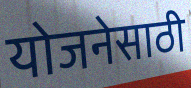
योजनेसाठी